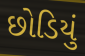
છોડિયું